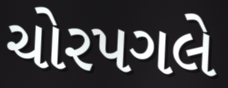
ચોરપગલે